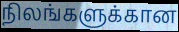
நிலங்களுக்கான